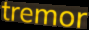
tremor